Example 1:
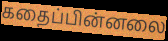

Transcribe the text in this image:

கதைப்பின்னலை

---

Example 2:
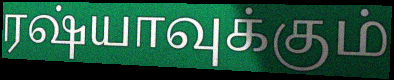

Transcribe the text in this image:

ரஷ்யாவுக்கும்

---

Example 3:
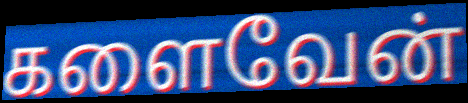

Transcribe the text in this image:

களைவேன்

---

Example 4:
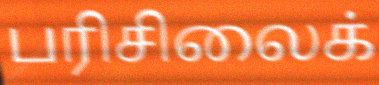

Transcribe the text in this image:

பரிசிலைக்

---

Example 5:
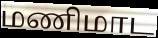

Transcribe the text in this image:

மணிமாட